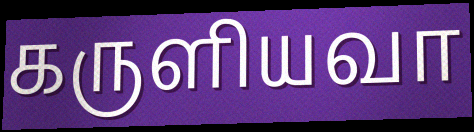
கருளியவா